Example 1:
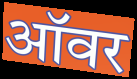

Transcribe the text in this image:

ऑवर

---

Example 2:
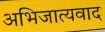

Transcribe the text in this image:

अभिजात्यवाद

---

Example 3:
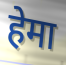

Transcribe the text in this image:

हेमा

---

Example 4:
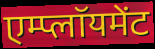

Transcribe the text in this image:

एम्प्लॉयमेंट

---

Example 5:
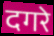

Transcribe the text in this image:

दगरे